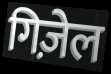
गिज़ेल